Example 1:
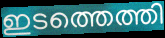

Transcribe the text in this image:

ഇടത്തെത്തി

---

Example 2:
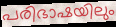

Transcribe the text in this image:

പരിഭാഷയിലും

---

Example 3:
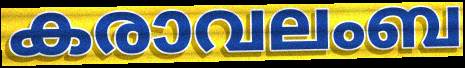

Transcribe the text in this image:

കരാവലംബ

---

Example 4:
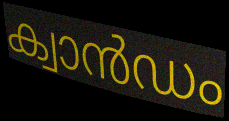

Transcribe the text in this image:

ക്വാൻഡം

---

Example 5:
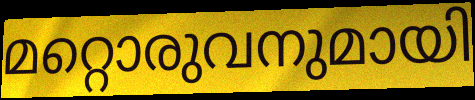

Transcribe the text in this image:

മറ്റൊരുവനുമായി